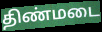
திண்மடை